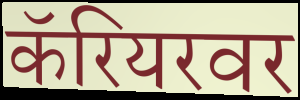
कॅरियरवर